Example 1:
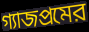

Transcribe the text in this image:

গ্যাজপ্রমের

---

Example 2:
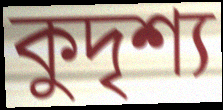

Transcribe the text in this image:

কুদৃশ্য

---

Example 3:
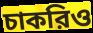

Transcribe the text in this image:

চাকরিও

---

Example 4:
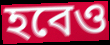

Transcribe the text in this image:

হবেও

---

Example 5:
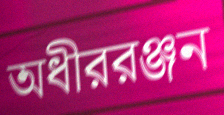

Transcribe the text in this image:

অধীররঞ্জন